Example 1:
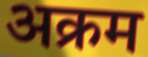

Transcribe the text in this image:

अक्रम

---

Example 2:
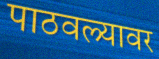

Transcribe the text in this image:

पाठवल्यावर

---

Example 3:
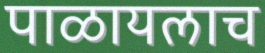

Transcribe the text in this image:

पाळायलाच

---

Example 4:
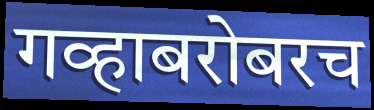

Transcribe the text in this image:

गव्हाबरोबरच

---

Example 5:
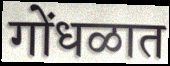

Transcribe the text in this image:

गोंधळात